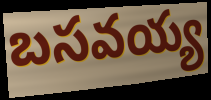
బసవయ్య